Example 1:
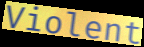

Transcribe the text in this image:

Violent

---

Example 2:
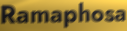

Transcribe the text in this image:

Ramaphosa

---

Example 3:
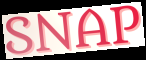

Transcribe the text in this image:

SNAP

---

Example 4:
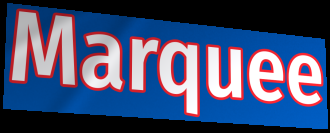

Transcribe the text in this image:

Marquee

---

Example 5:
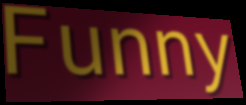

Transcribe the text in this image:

Funny